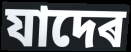
যাদেৰ